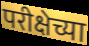
परीक्षेच्या